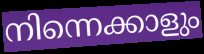
നിന്നെക്കാളും